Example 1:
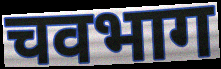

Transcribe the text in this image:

चवभाग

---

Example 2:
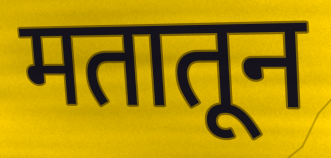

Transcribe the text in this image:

मतातून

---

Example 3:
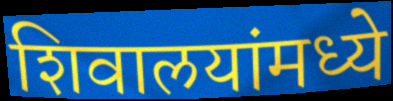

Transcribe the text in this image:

शिवालयांमध्ये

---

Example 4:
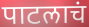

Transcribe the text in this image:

पाटलाचं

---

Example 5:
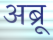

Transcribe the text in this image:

अब्रू